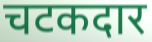
चटकदार